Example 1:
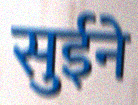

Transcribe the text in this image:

सुईने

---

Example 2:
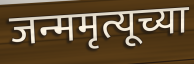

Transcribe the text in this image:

जन्ममृत्यूच्या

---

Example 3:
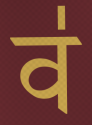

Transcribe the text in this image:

व॑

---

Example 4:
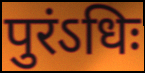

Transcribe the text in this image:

पुरंऽधिः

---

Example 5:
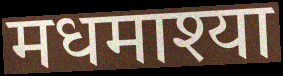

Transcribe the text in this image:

मधमाश्‍या